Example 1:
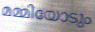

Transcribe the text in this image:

മമ്മിയോടും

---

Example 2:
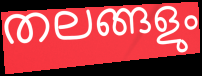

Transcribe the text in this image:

തലങ്ങളും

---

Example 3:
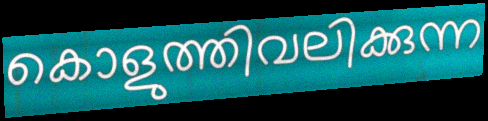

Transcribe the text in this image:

കൊളുത്തിവലിക്കുന്ന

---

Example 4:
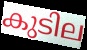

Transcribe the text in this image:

കുടില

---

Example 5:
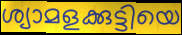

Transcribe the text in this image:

ശ്യാമളക്കുട്ടിയെ